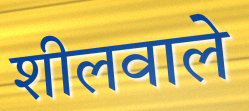
शीलवाले